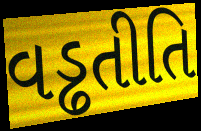
વડ્ઢતીતિ